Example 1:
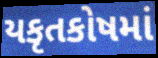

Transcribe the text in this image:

યકૃતકોષમાં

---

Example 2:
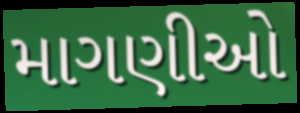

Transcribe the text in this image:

માગણીઓ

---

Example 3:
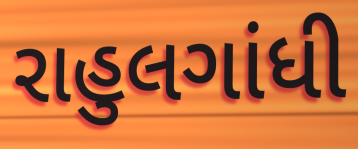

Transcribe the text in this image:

રાહુલગાંધી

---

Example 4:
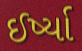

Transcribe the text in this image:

ઈર્ષ્યા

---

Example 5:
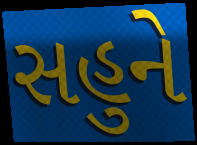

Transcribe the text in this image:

સહુને